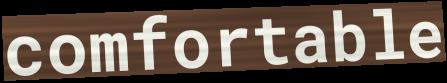
comfortable